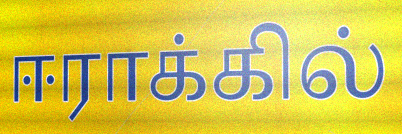
ஈராக்கில்